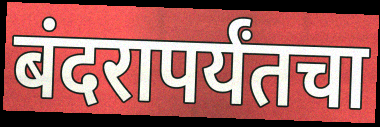
बंदरापर्यंतचा